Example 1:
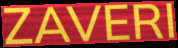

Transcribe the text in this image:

ZAVERI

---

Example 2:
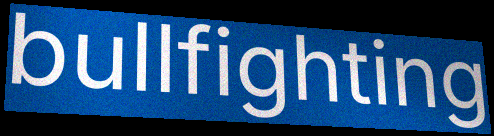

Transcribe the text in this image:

bullfighting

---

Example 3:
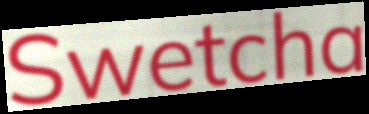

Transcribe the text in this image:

Swetcha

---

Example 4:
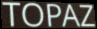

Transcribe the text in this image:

TOPAZ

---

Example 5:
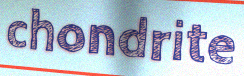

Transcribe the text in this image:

chondrite